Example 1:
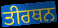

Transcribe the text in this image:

ਤੀਰਥਨ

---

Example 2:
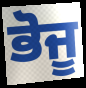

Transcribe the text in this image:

ਭੋਜੂ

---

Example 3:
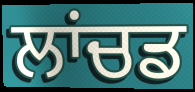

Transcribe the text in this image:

ਲਾਂਚਡ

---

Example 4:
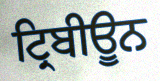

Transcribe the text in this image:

ਟ੍ਰਿਬੀਊਨ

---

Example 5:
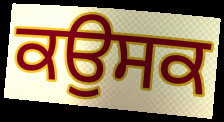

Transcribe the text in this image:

ਕਉਸਕ